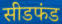
सीडफंड